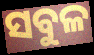
ସବୁଳ